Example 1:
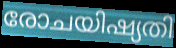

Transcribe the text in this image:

രോചയിഷ്യതി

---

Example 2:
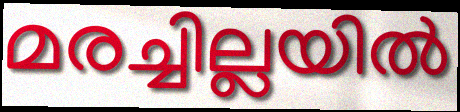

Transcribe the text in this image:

മരച്ചില്ലയിൽ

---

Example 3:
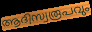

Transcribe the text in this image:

ആദിസ്വരൂപവും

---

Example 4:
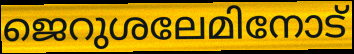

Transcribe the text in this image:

ജെറുശലേമിനോട്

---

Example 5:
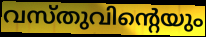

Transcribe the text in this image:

വസ്തുവിന്റെയും